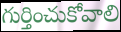
గుర్తించుకోవాలి